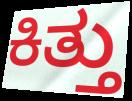
ಕಿತ್ತು